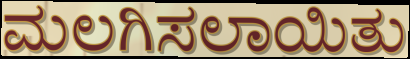
ಮಲಗಿಸಲಾಯಿತು